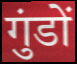
गुंडों